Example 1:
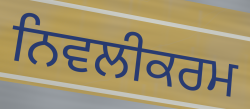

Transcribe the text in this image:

ਨਿਵਲੀਕਰਮ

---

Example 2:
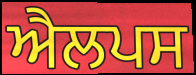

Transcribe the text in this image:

ਐਲਪਸ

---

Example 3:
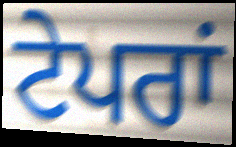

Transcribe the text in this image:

ਟੇਪਰਾਂ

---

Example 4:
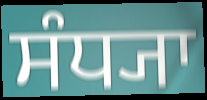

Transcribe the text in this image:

ਸੰਧ੍ਯਾ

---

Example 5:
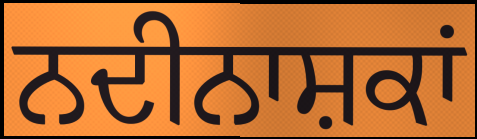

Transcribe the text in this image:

ਨਦੀਨਾਸ਼ਕਾਂ